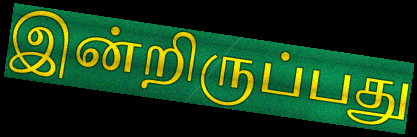
இன்றிருப்பது